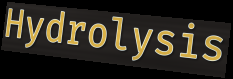
Hydrolysis